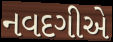
નવદગીએ